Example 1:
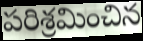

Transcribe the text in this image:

పరిశ్రమించిన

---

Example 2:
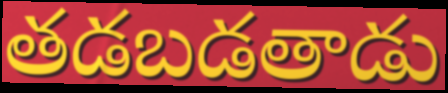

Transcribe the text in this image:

తడబడతాడు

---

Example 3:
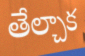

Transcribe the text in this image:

తేల్చాక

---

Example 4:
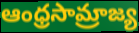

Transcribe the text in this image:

ఆంధ్రసామ్రాజ్య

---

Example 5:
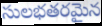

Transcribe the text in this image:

సులభతరమైన